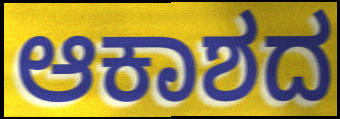
ಆಕಾಶದ